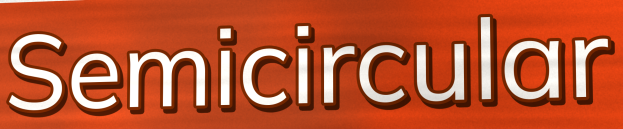
Semicircular